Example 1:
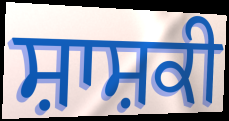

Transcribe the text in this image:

ਸ਼ਾਸ਼ਕੀ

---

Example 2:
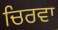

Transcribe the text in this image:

ਚਿਰਵਾ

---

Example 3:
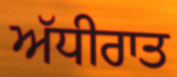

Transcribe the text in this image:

ਅੱਧੀਰਾਤ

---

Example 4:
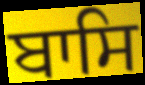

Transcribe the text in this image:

ਬਾਸਿ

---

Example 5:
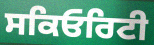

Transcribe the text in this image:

ਸਕਿਓਰਿਟੀ